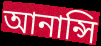
আনান্সি